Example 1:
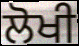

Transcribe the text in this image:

ਲੋਖੀ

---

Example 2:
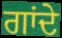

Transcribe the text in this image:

ਗਾਂਦੇ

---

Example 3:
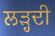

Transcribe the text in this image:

ਲੜ੍ਹਦੀ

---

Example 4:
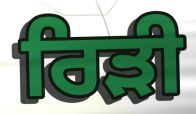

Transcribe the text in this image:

ਰਿੜੀ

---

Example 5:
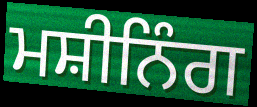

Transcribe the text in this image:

ਮਸ਼ੀਨਿੰਗ